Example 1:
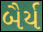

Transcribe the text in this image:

બૈર્ય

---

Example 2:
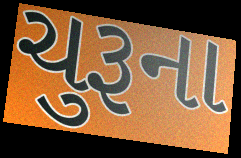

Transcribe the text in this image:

ચુરૂના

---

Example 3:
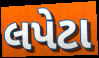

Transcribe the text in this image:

લપેટા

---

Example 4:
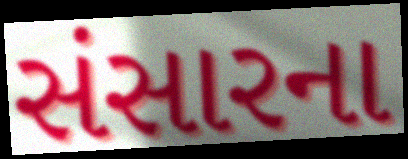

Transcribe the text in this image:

સંસારના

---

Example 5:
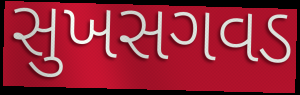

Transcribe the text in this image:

સુખસગવડ